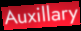
Auxillary